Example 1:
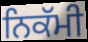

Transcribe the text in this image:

ਨਿਕੱਮੀ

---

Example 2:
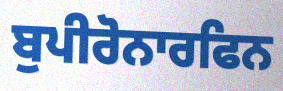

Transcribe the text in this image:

ਬੁਪੀਰੋਨਾਰਫਿਨ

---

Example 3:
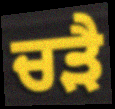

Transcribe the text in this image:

ਚੜੈ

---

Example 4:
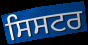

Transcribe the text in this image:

ਸਿਸਟਰ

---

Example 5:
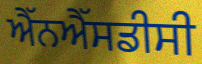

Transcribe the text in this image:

ਐੱਨਐੱਸਡੀਸੀ